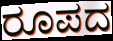
ರೂಪದ